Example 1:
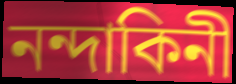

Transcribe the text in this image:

নন্দাকিনী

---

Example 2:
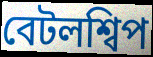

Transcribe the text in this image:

বেটলশ্বিপ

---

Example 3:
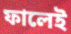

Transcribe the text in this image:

ফালেই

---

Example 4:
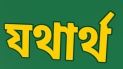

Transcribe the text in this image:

যথাৰ্থ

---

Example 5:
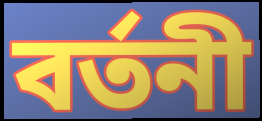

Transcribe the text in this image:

বৰ্তনী